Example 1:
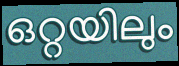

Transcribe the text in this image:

ഒറ്റയിലും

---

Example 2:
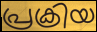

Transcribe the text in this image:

പ്രക്രിയ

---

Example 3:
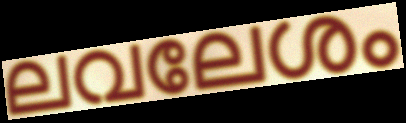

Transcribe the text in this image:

ലവലേശം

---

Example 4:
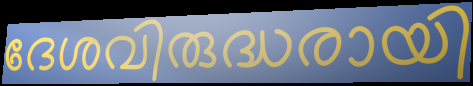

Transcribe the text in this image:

ദേശവിരുദ്ധരായി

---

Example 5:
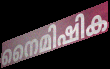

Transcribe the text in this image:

നൈമിഷിക